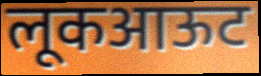
लूकआऊट